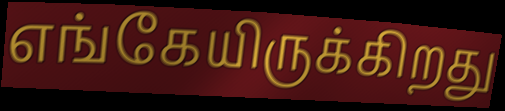
எங்கேயிருக்கிறது